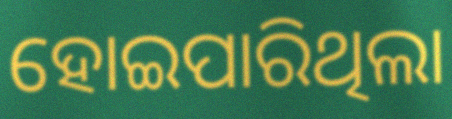
ହୋଇପାରିଥିଲା